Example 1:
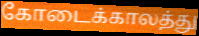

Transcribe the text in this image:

கோடைக்காலத்து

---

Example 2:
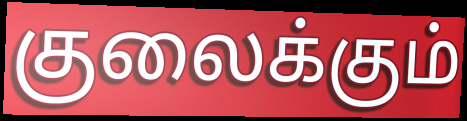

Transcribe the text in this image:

குலைக்கும்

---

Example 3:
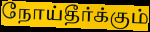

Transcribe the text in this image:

நோய்தீர்க்கும்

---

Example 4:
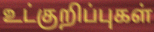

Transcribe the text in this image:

உட்குறிப்புகள்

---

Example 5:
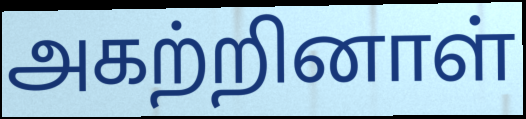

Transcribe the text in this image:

அகற்றினாள்